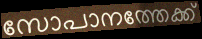
സോപാനത്തേക്ക്